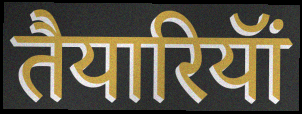
तैयारियॉं